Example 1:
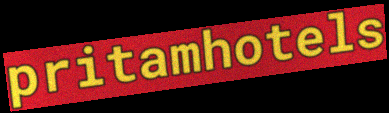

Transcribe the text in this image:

pritamhotels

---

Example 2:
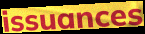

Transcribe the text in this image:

issuances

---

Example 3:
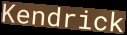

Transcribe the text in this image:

Kendrick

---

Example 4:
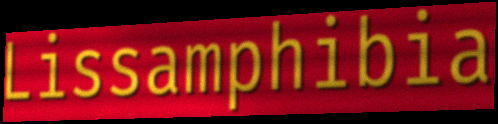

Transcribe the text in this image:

Lissamphibia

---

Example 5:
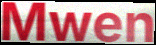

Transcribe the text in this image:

Mwen